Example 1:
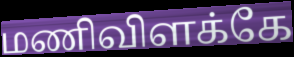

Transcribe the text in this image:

மணிவிளக்கே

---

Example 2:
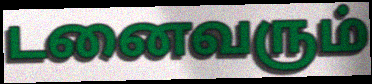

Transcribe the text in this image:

டனைவரும்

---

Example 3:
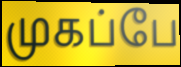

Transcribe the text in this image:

முகப்பே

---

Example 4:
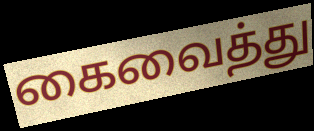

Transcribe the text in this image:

கைவைத்து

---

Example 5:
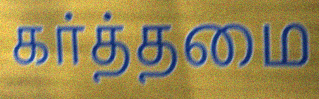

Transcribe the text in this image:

கர்த்தமை